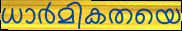
ധാർമികതയെ